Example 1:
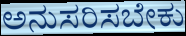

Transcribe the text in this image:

ಅನುಸರಿಸಬೇಕು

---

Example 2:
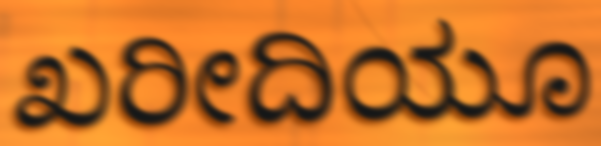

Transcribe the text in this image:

ಖರೀದಿಯೂ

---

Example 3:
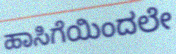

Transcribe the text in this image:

ಹಾಸಿಗೆಯಿಂದಲೇ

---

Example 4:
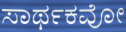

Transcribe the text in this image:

ಸಾರ್ಥಕವೋ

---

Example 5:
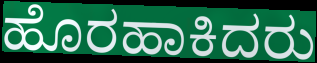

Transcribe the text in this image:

ಹೊರಹಾಕಿದರು